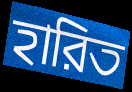
হারিত